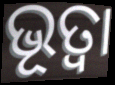
ଭୂତ୍ୱା